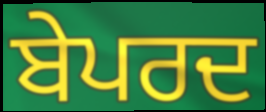
ਬੇਪਰਦ